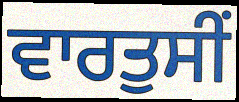
ਵਾਰਤੁਸੀਂ